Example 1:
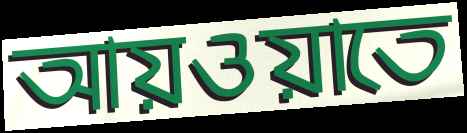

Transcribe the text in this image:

আয়ওয়াতে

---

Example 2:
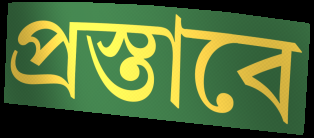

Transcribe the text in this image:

প্রস্তাবে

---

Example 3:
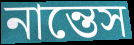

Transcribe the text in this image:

নান্তেস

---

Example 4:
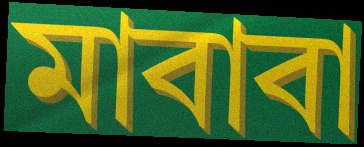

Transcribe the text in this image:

মাবাবা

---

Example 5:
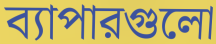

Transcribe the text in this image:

ব্যাপারগুলো